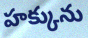
హక్కును